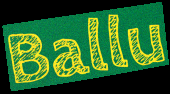
Ballu